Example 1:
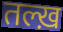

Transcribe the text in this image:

तल्ख़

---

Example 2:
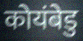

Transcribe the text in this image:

कोयंबेडु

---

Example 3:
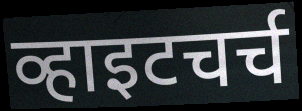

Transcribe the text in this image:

व्हाइटचर्च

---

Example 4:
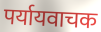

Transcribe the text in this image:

पर्यायवाचक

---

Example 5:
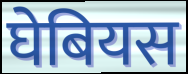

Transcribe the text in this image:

घेबियस